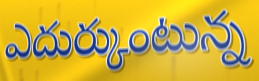
ఎదుర్కుంటున్న